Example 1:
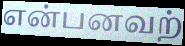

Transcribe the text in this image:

என்பனவற்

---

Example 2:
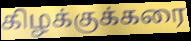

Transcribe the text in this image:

கிழக்குக்கரை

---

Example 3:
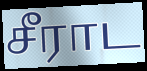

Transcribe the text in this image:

சீராட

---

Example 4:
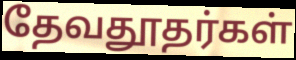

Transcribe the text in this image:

தேவதூதர்கள்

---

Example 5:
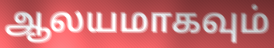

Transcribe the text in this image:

ஆலயமாகவும்